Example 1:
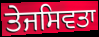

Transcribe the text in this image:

ਤੇਜਸਿਵਤਾ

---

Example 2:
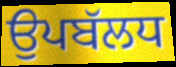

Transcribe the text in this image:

ਉਪਬੱਲਧ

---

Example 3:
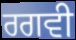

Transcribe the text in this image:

ਰਗਵੀ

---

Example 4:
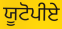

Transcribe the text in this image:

ਯੂਟੋਪੀਏ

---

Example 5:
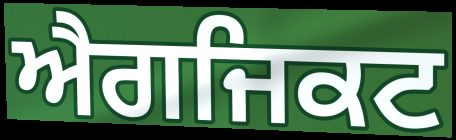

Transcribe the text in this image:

ਐਗਜਿਕਟ